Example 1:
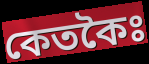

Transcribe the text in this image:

কেতকৈঃ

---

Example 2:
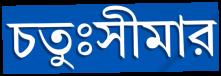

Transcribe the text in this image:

চতুঃসীমার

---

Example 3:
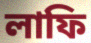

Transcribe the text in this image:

লাফি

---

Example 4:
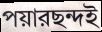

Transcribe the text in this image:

পয়ারছন্দই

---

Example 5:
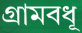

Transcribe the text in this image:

গ্রামবধূ